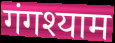
गंगश्याम